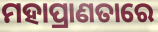
ମହାପ୍ରାଣତାରେ